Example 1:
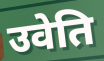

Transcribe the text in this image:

उवेति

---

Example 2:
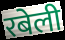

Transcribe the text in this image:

रबेली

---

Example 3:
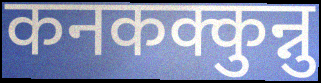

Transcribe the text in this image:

कनकक्कुन्नु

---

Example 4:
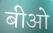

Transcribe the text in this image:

बीओ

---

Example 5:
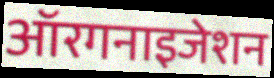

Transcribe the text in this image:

ऑरगनाइजेशन